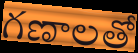
గణాలతో